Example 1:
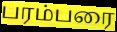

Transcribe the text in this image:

பரம்பரை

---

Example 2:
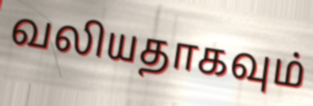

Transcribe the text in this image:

வலியதாகவும்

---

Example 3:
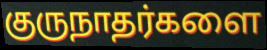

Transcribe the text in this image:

குருநாதர்களை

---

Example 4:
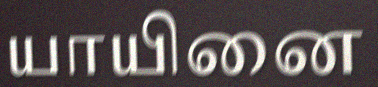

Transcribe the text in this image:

யாயினை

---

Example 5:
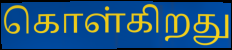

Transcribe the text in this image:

கொள்கிறது